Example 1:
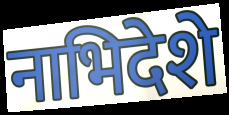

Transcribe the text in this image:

नाभिदेशे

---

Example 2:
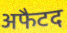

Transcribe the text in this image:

अफैटद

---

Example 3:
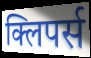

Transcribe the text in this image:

क्लिपर्स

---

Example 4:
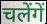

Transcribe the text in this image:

चलेंगें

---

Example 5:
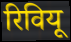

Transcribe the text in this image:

रिवियू